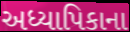
અધ્યાપિકાના